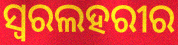
ସ୍ୱରଲହରୀର